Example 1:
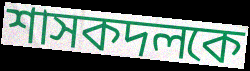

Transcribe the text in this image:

শাসকদলকে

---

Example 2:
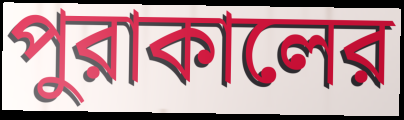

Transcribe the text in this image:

পুরাকালের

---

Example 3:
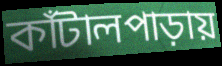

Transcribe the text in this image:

কাঁটালপাড়ায়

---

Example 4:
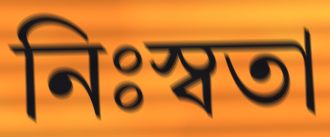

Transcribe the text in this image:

নিঃস্বতা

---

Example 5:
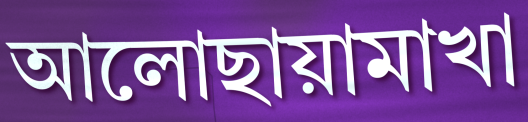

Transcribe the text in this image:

আলোছায়ামাখা